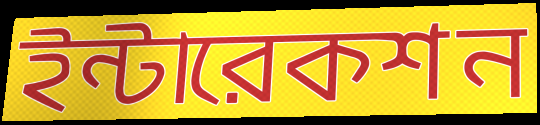
ইন্টারেকশন